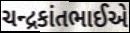
ચન્દ્રકાંતભાઈએ